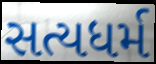
સત્યધર્મ